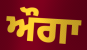
ਔਗਾ